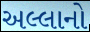
અલ્લાનો